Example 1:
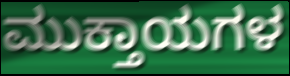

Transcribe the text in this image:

ಮುಕ್ತಾಯಗಳ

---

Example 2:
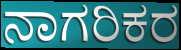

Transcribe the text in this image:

ನಾಗರಿಕರ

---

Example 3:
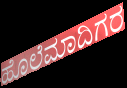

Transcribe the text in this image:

ಹೊಲೆಮಾದಿಗರ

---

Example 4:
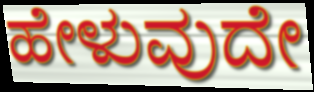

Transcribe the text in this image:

ಹೇಳುವುದೇ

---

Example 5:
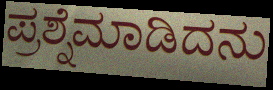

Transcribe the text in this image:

ಪ್ರಶ್ನೆಮಾಡಿದನು